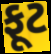
ફૂટ